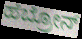
ಹೆಬ್ರೋನ್